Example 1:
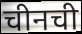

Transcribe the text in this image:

चीनची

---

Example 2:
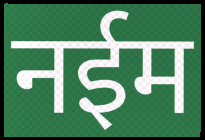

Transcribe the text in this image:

नईम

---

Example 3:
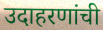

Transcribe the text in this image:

उदाहरणांची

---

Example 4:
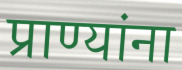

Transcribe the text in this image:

प्राण्यांना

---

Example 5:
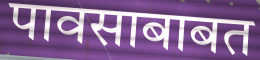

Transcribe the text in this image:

पावसाबाबत